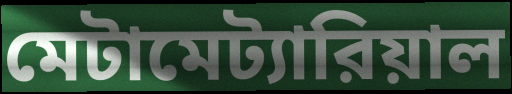
মেটামেট্যারিয়াল